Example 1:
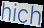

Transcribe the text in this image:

hich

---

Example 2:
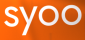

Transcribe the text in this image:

syoo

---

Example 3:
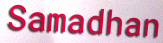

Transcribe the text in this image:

Samadhan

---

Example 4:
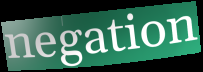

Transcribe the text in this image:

negation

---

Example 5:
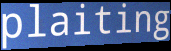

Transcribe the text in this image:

plaiting